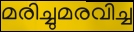
മരിച്ചുമരവിച്ച